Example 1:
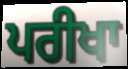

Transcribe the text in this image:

ਪਰੀਖਾ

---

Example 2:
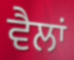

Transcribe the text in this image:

ਵੈਲਾਂ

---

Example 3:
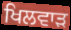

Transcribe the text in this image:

ਖਿਲਵਾੜ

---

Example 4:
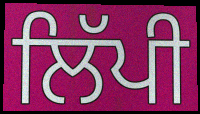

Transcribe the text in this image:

ਲਿੱਪੀ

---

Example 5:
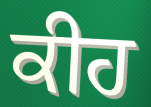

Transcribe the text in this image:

ਕੀਹ